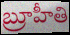
బ్రూహీతి